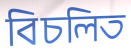
বিচলিত